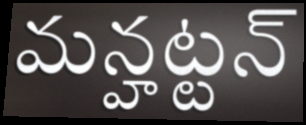
మన్హట్టన్